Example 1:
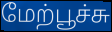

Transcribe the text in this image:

மேற்பூச்சு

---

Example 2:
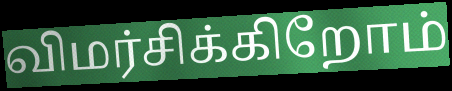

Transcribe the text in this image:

விமர்சிக்கிறோம்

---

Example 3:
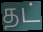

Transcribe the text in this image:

தட்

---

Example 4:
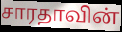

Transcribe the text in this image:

சாரதாவின்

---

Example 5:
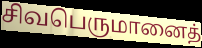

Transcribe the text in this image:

சிவபெருமானைத்